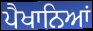
ਪੈਖਾਨਿਆਂ